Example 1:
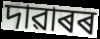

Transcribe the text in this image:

দাৱাৰৰ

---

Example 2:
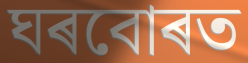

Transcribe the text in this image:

ঘৰবোৰত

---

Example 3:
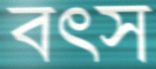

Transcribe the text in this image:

বৎস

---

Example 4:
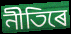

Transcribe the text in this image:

নীতিৰে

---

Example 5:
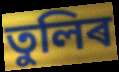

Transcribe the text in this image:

তুলিৰ